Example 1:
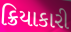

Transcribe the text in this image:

ક્રિયાકારી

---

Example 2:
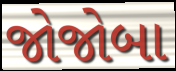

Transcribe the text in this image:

જોજોબા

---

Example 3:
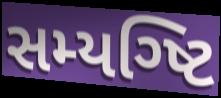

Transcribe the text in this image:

સમ્યગ્ષ્ટિ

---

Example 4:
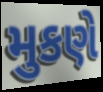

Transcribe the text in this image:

મુકણે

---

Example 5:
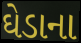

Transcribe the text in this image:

ઘેડાના